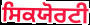
ਸਿਕਯੋਰਟੀ